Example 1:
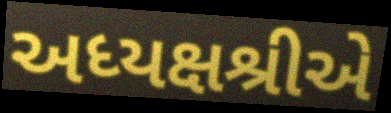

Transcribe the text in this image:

અધ્યક્ષશ્રીએ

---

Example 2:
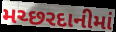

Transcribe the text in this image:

મચ્છરદાનીમાં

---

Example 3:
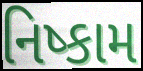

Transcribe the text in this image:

નિષ્કામ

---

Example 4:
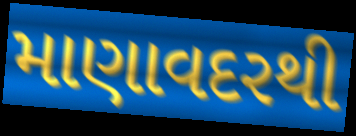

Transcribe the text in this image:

માણાવદરથી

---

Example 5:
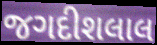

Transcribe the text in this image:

જગદીશલાલ